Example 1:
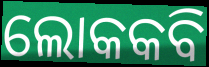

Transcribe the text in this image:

ଲୋକକବି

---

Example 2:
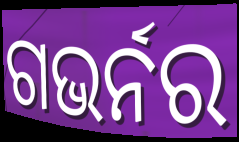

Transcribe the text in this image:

ଗଭର୍ନର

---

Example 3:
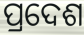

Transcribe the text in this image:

ପ୍ରଦେଶ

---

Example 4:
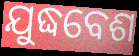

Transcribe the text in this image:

ଯୁଦ୍ଧବେଶ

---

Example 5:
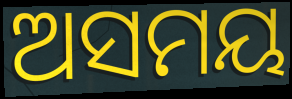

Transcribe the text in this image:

ଅସମୟ